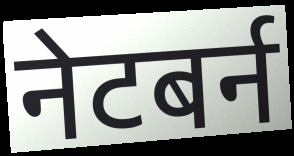
नेटबर्न